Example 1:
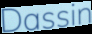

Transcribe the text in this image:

Dassin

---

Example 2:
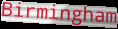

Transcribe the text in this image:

Birmingham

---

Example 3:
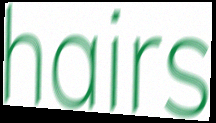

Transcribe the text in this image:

hairs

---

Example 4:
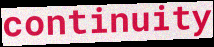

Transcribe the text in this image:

continuity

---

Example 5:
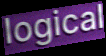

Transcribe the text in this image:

logical